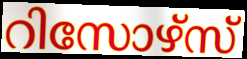
റിസോഴ്സ്